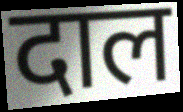
दाल